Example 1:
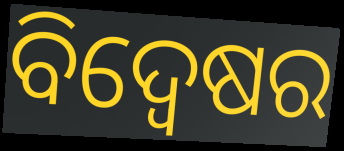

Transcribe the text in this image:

ବିଦ୍ୱେଷର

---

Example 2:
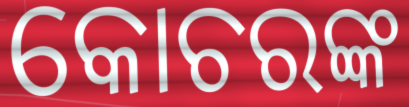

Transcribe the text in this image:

କୋଚରଙ୍କ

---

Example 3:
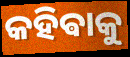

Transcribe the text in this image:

କହିଵାକୁ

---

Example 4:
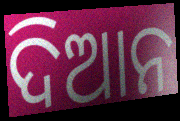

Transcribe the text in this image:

ଦିଆନ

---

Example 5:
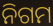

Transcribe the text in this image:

ନିଗମ